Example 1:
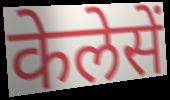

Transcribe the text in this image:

केलेसें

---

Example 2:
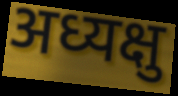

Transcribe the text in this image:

अध्यक्षु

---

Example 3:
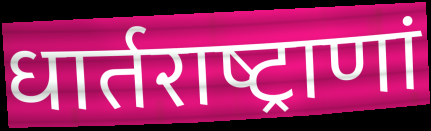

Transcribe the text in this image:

धार्तराष्ट्राणां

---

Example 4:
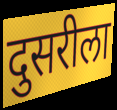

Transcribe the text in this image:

दुसरीला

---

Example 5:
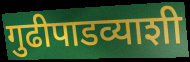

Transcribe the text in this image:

गुढीपाडव्याशी